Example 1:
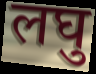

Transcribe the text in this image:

लघु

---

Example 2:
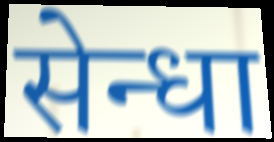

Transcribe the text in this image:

सेन्धा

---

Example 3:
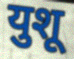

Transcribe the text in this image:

युशू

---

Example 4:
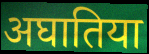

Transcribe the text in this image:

अघातिया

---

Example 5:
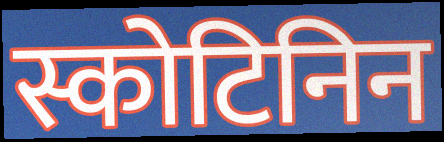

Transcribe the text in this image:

स्कोटिनिन